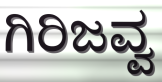
ಗಿರಿಜವ್ವ